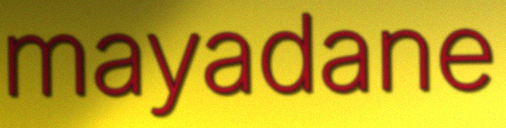
mayadane